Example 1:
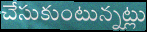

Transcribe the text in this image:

చేసుకుంటున్నట్లు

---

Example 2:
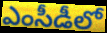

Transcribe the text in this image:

ఎంసీడీలో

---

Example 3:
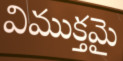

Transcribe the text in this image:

విముక్తమై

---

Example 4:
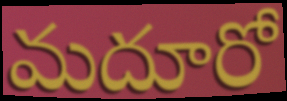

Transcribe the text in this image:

మదూరో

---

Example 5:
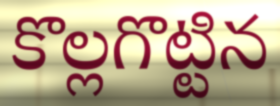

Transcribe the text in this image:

కొల్లగొట్టిన